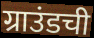
ग्राउंडची